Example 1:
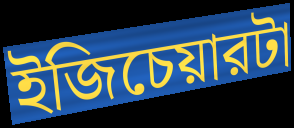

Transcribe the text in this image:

ইজিচেয়ারটা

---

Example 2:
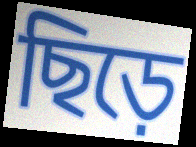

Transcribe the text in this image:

ছিড়ে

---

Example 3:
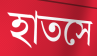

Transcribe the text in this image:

হাতসে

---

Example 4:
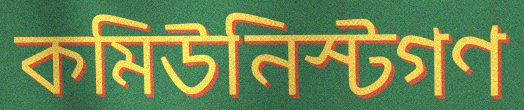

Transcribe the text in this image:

কমিউনিস্টগণ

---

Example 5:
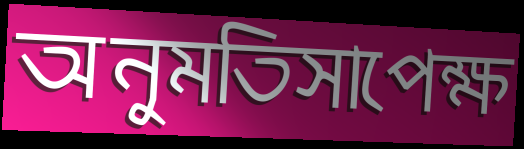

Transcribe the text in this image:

অনুমতিসাপেক্ষ